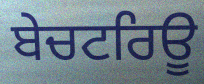
ਬੇਚਟਰਿਊ